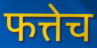
फत्तेच